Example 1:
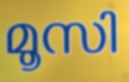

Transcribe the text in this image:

മൂസി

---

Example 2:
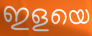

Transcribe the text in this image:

ഇളയെ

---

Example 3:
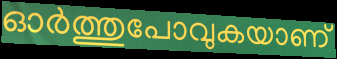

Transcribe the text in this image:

ഓർത്തുപോവുകയാണ്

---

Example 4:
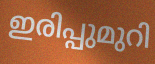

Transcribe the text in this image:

ഇരിപ്പുമുറി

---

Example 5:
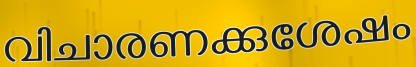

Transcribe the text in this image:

വിചാരണക്കുശേഷം